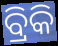
ବ୍ରିକି